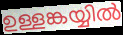
ഉള്ളങ്കയ്യിൽ